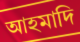
আহমাদি